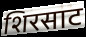
शिरसाट